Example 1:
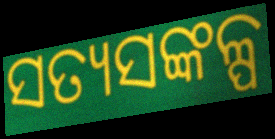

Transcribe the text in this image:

ସତ୍ୟସଙ୍କଳ୍ପ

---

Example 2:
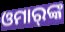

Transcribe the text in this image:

ଓମାର୍‌ଙ୍କ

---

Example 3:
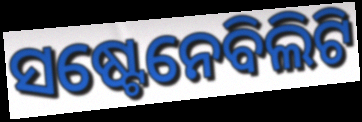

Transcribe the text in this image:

ସଷ୍ଟେନେବିଲିଟି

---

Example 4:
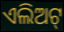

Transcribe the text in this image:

ଏଲିଅଟ୍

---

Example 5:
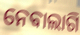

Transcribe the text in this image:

ନେବାଲାଗି